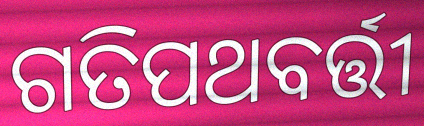
ଗତିପଥବର୍ତ୍ତୀ